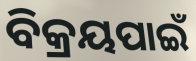
ବିକ୍ରୟପାଇଁ